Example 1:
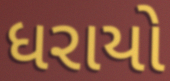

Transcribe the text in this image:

ધરાયો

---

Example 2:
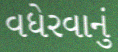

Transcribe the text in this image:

વધેરવાનું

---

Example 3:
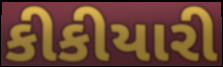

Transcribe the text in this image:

કીકીયારી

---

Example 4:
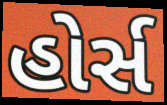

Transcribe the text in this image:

હોર્સ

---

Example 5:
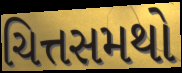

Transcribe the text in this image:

ચિત્તસમથો